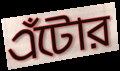
এঁটোর